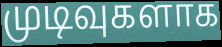
முடிவுகளாக